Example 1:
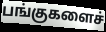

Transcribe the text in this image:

பங்குகளைச்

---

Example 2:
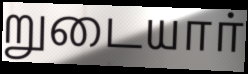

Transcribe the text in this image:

றுடையார்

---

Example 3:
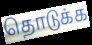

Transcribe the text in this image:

தொடுக்க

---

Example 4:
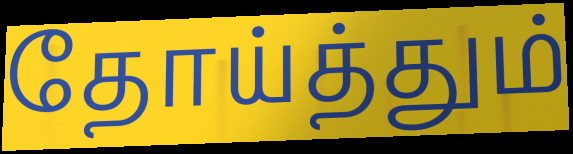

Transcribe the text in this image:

தோய்த்தும்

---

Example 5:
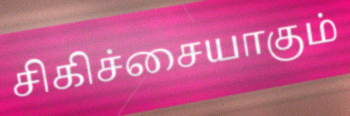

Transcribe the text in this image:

சிகிச்சையாகும்